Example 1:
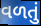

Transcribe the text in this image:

વળતું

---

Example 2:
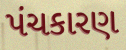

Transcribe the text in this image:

પંચકારણ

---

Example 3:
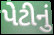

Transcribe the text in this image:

પેટીનું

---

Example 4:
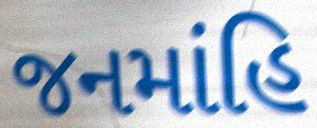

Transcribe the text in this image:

જનમાંહિ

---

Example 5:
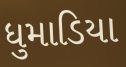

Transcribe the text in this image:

ધુમાડિયા